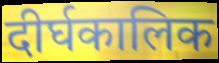
दीर्घकालिक